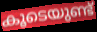
കൂടെയുണ്ട്